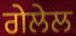
ਗੇਲੇਲ